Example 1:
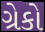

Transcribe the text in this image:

ગ્રેકો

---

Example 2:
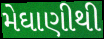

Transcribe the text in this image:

મેઘાણીથી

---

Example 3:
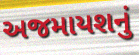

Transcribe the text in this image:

અજમાયશનું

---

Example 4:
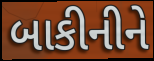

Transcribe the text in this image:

બાકીનીને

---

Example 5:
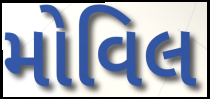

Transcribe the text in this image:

મોવિલ